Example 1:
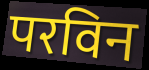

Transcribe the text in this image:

परविन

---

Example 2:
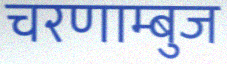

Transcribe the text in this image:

चरणाम्बुज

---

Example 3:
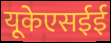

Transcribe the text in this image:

यूकेएसईई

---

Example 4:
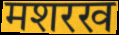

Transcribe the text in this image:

मशरख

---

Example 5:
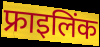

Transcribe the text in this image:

फ्राइलिंक